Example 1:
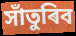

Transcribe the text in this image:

সাঁতুৰিব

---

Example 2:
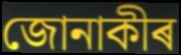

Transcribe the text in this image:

জোনাকীৰ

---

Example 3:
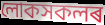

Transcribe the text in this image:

লোকসকলৰ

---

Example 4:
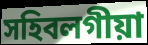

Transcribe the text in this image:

সহিবলগীয়া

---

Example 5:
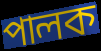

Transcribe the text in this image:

পালক